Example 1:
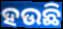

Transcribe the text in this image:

ହଉଛି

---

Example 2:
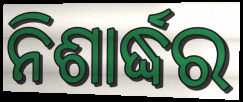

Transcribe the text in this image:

ନିଶାର୍ଦ୍ଧର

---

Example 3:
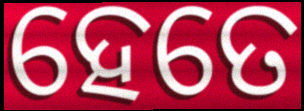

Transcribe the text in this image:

ହେତେ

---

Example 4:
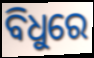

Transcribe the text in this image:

ବିଧୁରେ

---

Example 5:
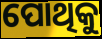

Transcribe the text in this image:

ପୋଥିକୁ